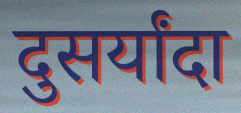
दुसर्यांदा